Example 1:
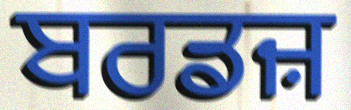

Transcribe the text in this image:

ਬਰਡਜ਼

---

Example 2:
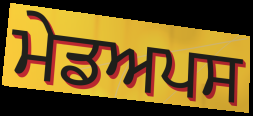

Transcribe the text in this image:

ਮੇਡਅਪਸ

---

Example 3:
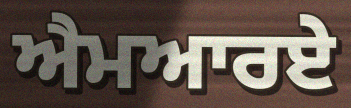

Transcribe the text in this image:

ਐਮਆਰਏ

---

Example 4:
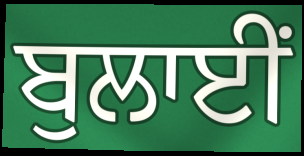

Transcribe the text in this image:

ਬੁਲਾਈਂ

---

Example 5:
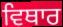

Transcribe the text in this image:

ਵਿਥਾਰ